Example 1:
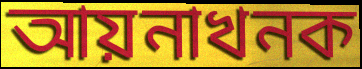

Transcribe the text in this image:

আয়নাখনক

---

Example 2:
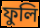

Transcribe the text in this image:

ফুলি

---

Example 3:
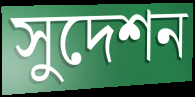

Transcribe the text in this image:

সুদেশন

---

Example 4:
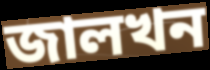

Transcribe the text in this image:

জালখন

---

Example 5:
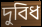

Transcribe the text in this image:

দুবিধ